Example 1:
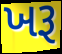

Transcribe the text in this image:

ખરૂ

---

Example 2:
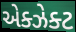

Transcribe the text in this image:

એક્ઝેક્ટ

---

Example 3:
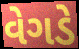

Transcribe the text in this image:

વેગડે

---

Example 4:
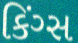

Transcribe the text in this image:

કિંગ્સ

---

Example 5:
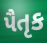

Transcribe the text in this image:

પૈતૃક